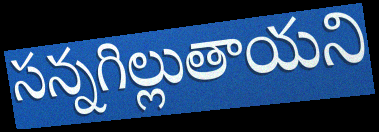
సన్నగిల్లుతాయని